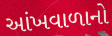
આંખવાળાનો